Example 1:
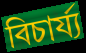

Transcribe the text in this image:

বিচাৰ্য্য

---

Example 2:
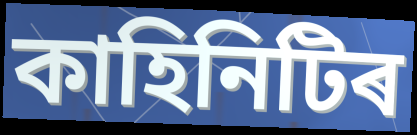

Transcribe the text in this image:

কাহিনিটিৰ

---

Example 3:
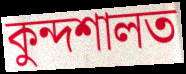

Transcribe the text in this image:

কুন্দশালত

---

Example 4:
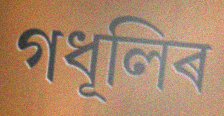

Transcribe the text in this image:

গধূলিৰ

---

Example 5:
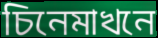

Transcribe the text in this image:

চিনেমাখনে